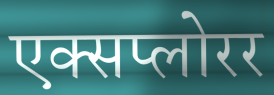
एक्सप्लोरर